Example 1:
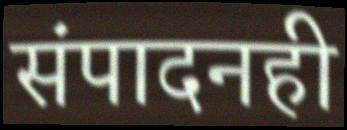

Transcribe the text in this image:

संपादनही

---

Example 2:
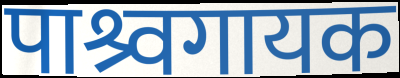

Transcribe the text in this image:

पाश्र्वगायक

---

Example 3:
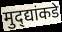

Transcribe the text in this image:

मुद्द्यांकडे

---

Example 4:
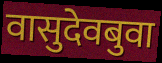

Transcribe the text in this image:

वासुदेवबुवा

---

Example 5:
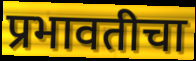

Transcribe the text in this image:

प्रभावतीचा